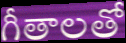
గీతాలతో